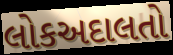
લોકઅદાલતો